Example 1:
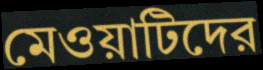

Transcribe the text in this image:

মেওয়াটিদের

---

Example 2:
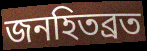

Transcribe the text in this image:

জনহিতব্রত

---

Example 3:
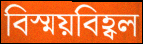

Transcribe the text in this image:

বিস্ময়বিহ্বল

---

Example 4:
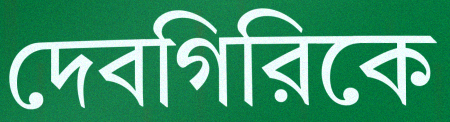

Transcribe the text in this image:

দেবগিরিকে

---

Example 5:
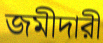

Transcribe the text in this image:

জমীদারী